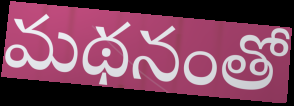
మథనంతో